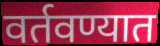
वर्तवण्यात